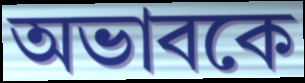
অভাবকে